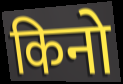
किनो